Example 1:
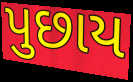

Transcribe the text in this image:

પુછાય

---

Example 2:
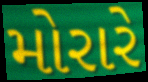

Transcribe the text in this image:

મોરારે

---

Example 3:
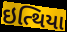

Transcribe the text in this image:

ઇત્થિયા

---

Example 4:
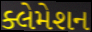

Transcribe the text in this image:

ક્લેમેશન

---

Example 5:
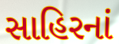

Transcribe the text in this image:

સાહિરનાં